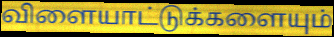
விளையாட்டுக்களையும்